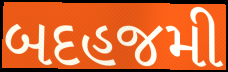
બદહજમી